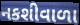
નકશીવાળા